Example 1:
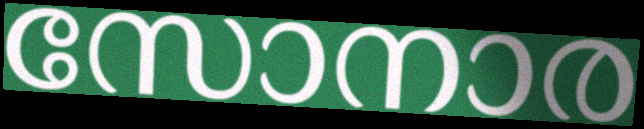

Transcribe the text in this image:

സോനാര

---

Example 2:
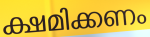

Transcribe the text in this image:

ക്ഷമിക്കണം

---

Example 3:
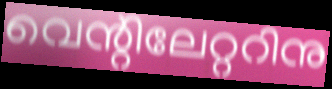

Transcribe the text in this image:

വെന്റിലേറ്ററിനു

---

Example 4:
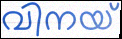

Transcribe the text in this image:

വിനയ്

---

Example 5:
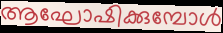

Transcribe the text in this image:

ആഘോഷിക്കുമ്പോൾ